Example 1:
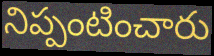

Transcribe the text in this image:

నిప్పంటించారు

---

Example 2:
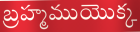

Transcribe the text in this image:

బ్రహ్మముయొక్క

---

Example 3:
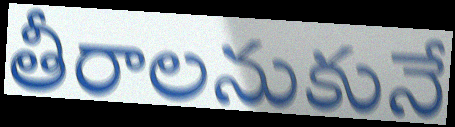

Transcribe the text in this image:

తీరాలనుకునే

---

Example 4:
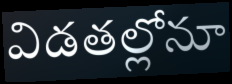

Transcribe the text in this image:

విడతల్లోనూ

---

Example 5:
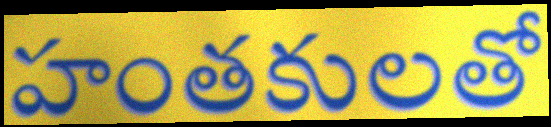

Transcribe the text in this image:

హంతకులతో